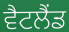
ਵੈਟਲੈਂਡ